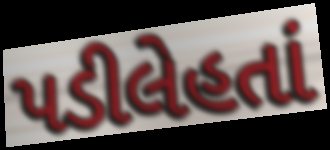
પડીલેહતાં